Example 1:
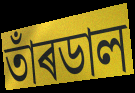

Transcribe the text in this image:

তাঁৰডাল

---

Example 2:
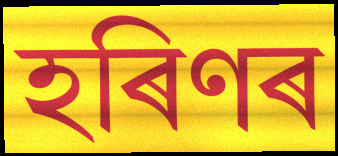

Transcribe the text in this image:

হৰিণৰ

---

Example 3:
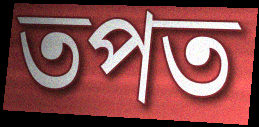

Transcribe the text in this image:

তপত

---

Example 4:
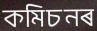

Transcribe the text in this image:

কমিচনৰ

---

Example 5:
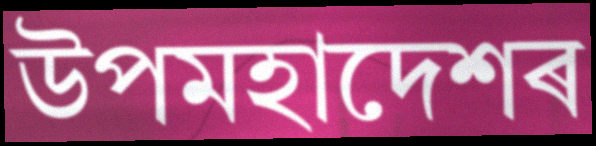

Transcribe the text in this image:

উপমহাদেশৰ